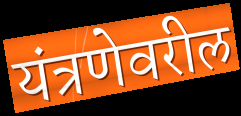
यंत्रणेवरील